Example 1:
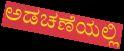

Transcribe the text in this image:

ಅಡಚಣೆಯಲ್ಲಿ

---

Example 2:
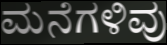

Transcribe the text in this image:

ಮನೆಗಳಿವು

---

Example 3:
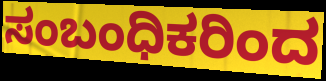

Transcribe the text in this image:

ಸಂಬಂಧಿಕರಿಂದ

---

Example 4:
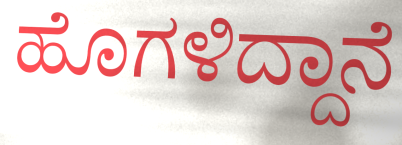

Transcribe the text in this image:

ಹೊಗಳಿದ್ದಾನೆ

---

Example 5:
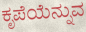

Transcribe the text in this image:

ಕೃಪೆಯೆನ್ನುವ